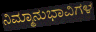
ನಿಮ್ಮಾನುಭಾವಿಗಳ